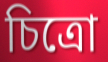
চিত্রো